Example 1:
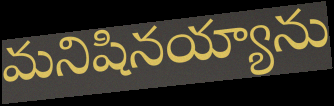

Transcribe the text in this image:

మనిషినయ్యాను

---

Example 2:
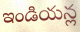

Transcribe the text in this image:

ఇండియన్ల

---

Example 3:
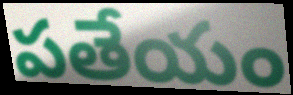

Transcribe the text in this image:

పతేయం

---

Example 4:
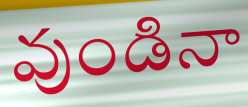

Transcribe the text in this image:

వుండినా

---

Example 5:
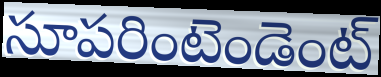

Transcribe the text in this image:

సూపరింటెండెంట్